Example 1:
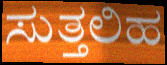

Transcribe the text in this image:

ಸುತ್ತಲಿಹ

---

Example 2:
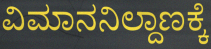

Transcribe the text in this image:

ವಿಮಾನನಿಲ್ದಾಣಕ್ಕೆ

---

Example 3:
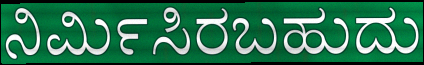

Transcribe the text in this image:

ನಿರ್ಮಿಸಿರಬಹುದು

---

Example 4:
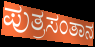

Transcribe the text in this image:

ಪುತ್ರಸಂತಾನ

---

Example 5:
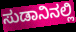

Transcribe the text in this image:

ಸುಡಾನಿನಲ್ಲಿ